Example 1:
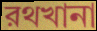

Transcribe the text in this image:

রথখানা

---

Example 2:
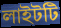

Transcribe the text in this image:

লাইটটি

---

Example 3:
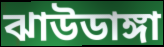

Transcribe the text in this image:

ঝাউডাঙ্গা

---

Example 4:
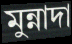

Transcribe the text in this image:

মুন্নাদা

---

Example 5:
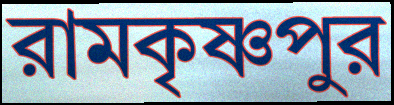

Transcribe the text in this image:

রামকৃষ্ণপুর